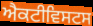
ਐਕਟੀਵਿਸਟਸ